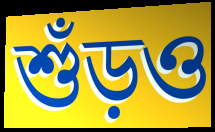
শুঁড়ও